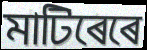
মাটিৰেৰে